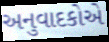
અનુવાદકોએ